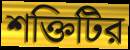
শক্তিটির